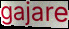
gajare